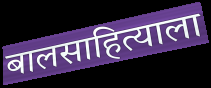
बालसाहित्याला